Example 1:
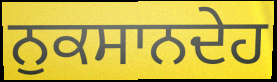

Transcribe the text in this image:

ਨੁਕਸਾਨਦੇਹ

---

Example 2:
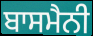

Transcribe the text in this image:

ਬਾਸਮੈਨੀ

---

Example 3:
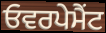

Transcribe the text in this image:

ਓਵਰਪੇਮੈਂਟ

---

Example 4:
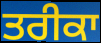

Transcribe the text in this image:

ਤਰੀਕਾ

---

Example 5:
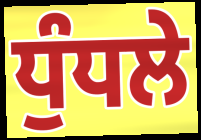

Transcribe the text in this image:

ਧੁੰਧਲੇ